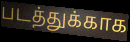
படத்துக்காக